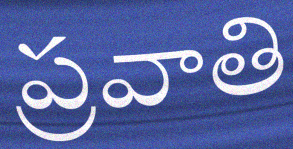
ప్రవాతి